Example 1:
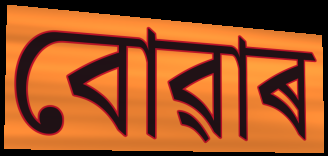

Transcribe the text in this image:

বোৱাৰ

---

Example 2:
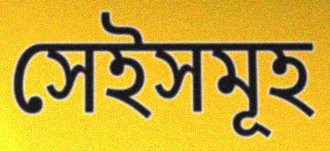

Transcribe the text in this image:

সেইসমূহ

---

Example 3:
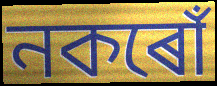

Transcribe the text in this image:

নকৰোঁ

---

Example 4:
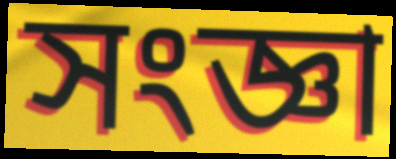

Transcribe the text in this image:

সংজ্ঞা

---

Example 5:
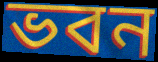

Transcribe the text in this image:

ভবন